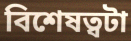
বিশেষত্বটা